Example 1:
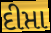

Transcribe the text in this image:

દીપ્તા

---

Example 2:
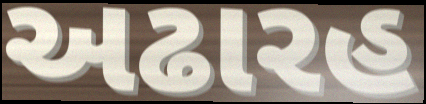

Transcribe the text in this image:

અઢારહ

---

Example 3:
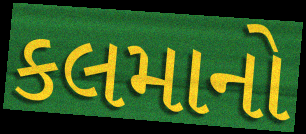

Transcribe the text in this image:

કલમાનો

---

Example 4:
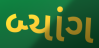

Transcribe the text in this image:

બ્યાંગ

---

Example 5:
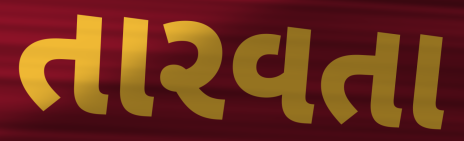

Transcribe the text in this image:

તારવતા